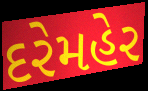
દરેમહેર